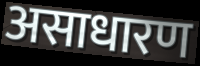
असाधारण